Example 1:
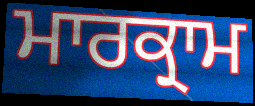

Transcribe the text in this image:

ਮਾਰਕ੍ਰਾਮ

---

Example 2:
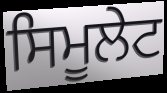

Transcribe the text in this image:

ਸਿਮੂਲੇਟ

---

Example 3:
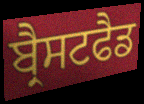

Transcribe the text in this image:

ਬ੍ਰੈਸਟਫੈਡ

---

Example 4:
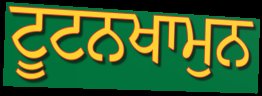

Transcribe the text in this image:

ਟੂਟਨਖਾਮੁਨ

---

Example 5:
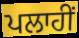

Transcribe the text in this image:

ਪਲਾਹੀਂ